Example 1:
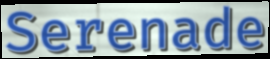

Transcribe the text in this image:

Serenade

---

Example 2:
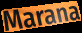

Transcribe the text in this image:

Marana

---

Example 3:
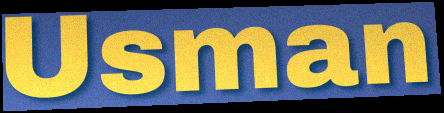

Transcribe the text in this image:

Usman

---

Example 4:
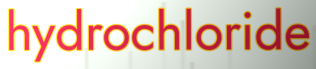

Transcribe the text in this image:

hydrochloride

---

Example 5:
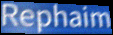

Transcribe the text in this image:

Rephaim